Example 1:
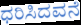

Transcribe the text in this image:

ಧರಿಸಿದವನೆ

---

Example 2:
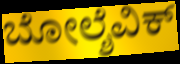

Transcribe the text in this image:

ಬೋಲ್ಶೆವಿಕ್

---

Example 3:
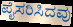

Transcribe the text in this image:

ಪೈಸರಿಸಿದವು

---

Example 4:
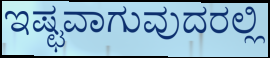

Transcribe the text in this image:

ಇಷ್ಟವಾಗುವುದರಲ್ಲಿ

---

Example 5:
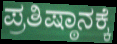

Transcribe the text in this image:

ಪ್ರತಿಷ್ಠಾನಕ್ಕೆ